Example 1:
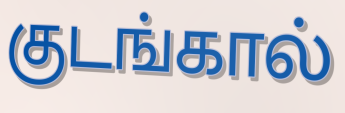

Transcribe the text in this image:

குடங்கால்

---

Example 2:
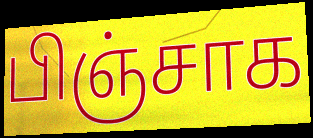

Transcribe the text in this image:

பிஞ்சாக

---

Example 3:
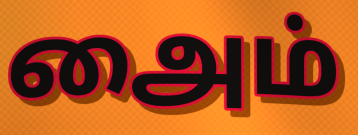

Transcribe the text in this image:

அைம்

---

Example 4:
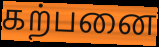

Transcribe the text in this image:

கற்பனை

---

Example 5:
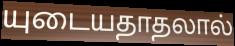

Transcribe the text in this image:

யுடையதாதலால்